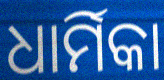
ଧାର୍ମିକା